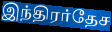
இந்திரர்தேச